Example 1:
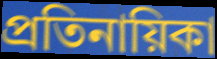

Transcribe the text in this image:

প্রতিনায়িকা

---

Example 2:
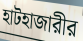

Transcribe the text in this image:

হাটহাজারীর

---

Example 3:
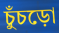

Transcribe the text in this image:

চুঁচড়ো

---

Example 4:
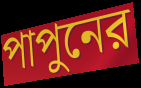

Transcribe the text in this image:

পাপুনের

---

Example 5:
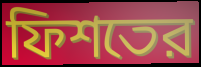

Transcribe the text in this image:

ফিশতের